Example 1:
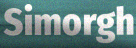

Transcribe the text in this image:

Simorgh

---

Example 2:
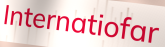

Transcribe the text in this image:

Internatiofar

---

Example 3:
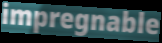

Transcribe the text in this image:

impregnable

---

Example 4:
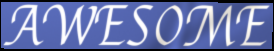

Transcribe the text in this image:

AWESOME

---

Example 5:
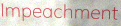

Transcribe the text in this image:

Impeachment